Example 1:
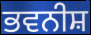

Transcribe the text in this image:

ਭਵਨੀਸ਼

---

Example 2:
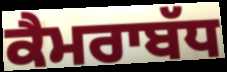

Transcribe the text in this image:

ਕੈਮਰਾਬੱਧ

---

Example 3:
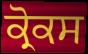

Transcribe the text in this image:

ਕ੍ਰੋਕਸ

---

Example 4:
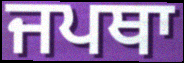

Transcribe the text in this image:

ਜਪਥਾ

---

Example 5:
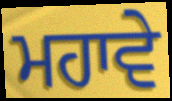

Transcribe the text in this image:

ਮਹਾਵੇ